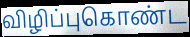
விழிப்புகொண்ட